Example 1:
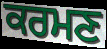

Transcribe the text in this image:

ਕਰਮਣ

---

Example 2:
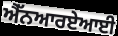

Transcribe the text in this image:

ਐੱਨਆਰਏਆਈ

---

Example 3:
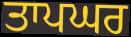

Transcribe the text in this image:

ਤਾਪਘਰ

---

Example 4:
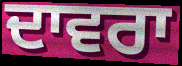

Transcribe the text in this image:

ਦਾਵਰਾ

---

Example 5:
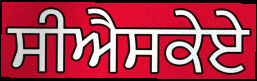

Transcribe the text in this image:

ਸੀਐਸਕੇਏ